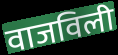
वाजविली